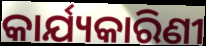
କାର୍ଯ୍ୟକାରିଣୀ